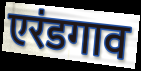
एरंडगाव